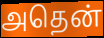
அதென்